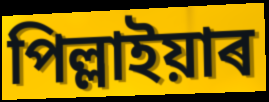
পিল্লাইয়াৰ